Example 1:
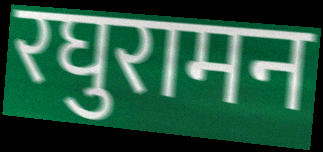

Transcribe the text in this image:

रघुरामन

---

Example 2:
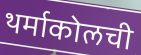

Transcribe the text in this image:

थर्माकोलची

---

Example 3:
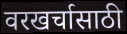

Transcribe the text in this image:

वरखर्चासाठी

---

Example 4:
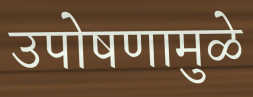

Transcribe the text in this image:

उपोषणामुळे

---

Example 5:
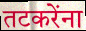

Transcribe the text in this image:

तटकरेंना